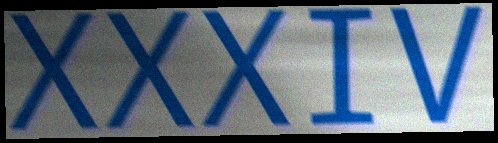
XXXIV